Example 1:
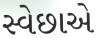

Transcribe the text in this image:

સ્વેછાએ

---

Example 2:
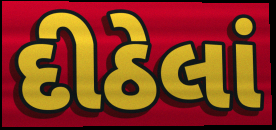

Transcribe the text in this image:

દીઠેલાં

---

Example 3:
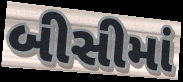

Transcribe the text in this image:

બીસીમાં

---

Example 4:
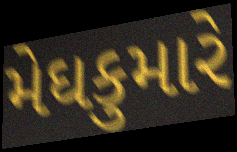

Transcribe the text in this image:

મેઘકુમારે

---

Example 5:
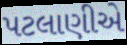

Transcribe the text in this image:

પટલાણીએ